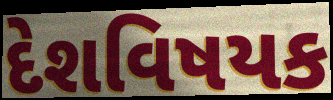
દેશવિષયક